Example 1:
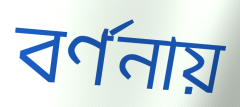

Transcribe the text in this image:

বর্ণনায়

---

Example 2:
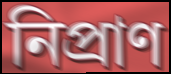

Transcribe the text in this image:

নিপ্রাণ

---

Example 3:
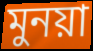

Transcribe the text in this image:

মুনয়া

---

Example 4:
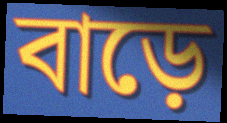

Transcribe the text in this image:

বাড়ে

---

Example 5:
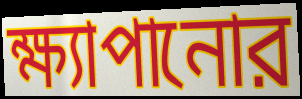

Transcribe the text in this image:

ক্ষ্যাপানোর